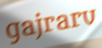
gajraru